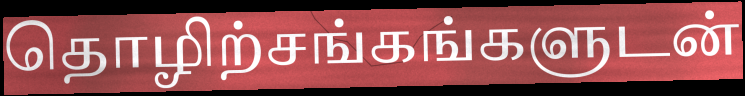
தொழிற்சங்கங்களுடன்